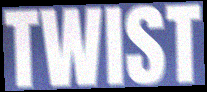
TWIST